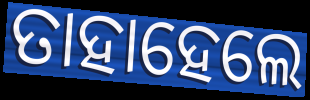
ତାହାହେଲେ